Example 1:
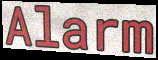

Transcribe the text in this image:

Alarm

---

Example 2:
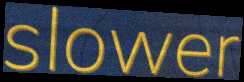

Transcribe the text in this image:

slower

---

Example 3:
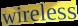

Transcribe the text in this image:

wireless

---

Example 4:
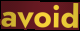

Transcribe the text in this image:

avoid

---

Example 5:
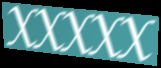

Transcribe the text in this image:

xxxxx